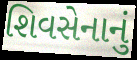
શિવસેનાનું